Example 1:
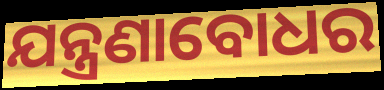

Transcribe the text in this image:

ଯନ୍ତ୍ରଣାବୋଧର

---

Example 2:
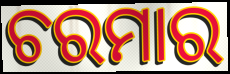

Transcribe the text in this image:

ଚରମାର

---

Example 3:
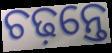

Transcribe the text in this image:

ଚଢ଼ନ୍ତେ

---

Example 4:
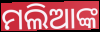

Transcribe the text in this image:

ମଲିଆଙ୍କ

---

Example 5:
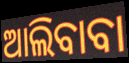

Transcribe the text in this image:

ଆଲିବାବା